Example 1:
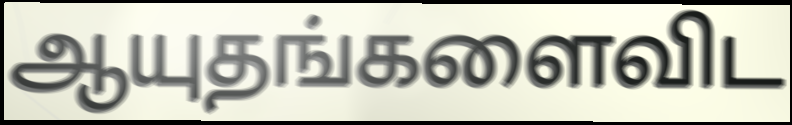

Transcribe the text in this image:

ஆயுதங்களைவிட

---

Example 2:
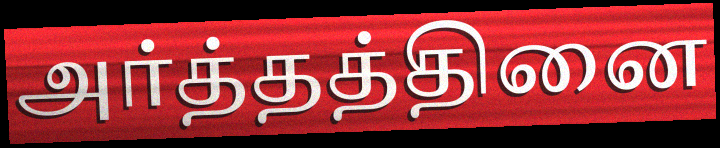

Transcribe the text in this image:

அர்த்தத்தினை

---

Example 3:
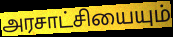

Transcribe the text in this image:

அரசாட்சியையும்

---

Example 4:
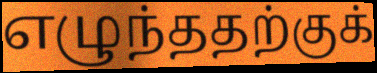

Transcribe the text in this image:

எழுந்ததற்குக்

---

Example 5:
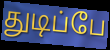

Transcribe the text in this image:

துடிப்பே